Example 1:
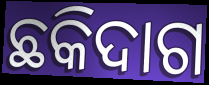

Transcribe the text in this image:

ଛକିଦାଗ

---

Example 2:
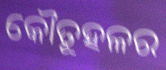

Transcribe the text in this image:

କୌତୂହଳର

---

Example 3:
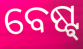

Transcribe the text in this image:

ବେଷ୍ଟ୍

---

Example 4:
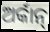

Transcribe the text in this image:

ଅର୍କାନ୍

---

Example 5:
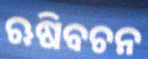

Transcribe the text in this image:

ଋଷିବଚନ